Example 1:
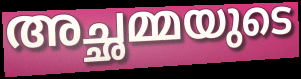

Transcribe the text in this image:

അച്ഛമ്മയുടെ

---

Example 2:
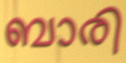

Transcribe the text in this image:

ബാരി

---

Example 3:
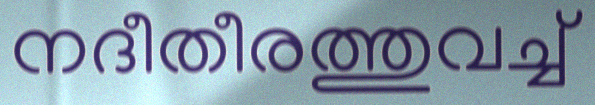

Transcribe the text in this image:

നദീതീരത്തുവച്ച്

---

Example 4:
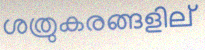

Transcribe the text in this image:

ശത്രുകരങ്ങളില്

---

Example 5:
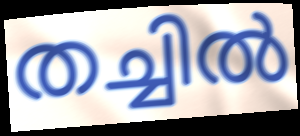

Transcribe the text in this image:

തച്ചിൽ